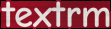
textrm